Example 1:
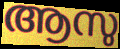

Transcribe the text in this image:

ആസു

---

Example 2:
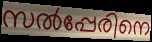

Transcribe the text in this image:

സൽപ്പേരിനെ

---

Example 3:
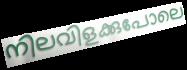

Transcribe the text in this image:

നിലവിളക്കുപോലെ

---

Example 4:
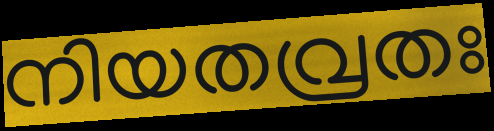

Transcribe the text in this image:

നിയതവ്രതഃ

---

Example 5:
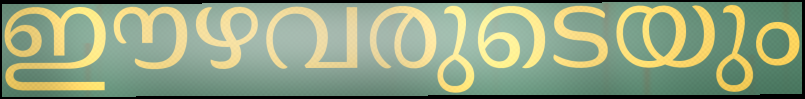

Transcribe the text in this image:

ഈഴവരുടെയും